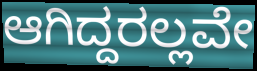
ಆಗಿದ್ದರಲ್ಲವೇ